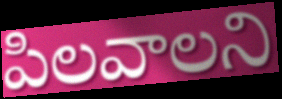
పిలవాలని